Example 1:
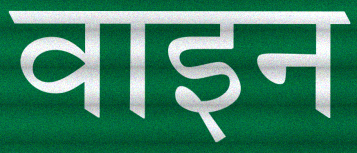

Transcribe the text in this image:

वाइन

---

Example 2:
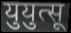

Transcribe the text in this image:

युयुत्सू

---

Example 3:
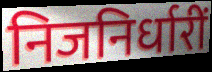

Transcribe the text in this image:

निजनिर्धारीं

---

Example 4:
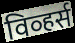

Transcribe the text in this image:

विव्हर्स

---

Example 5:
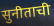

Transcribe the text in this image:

सुनीताची